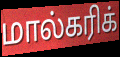
மால்கரிக்